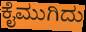
ಕೈಮುಗಿದು